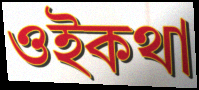
ওইকথা